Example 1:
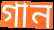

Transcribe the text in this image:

গান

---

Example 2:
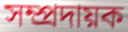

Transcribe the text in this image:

সম্প্ৰদায়ক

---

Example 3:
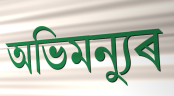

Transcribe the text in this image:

অভিমন্যুৰ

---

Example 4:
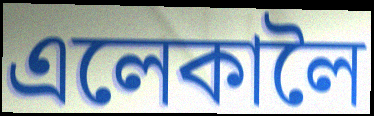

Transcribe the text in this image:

এলেকালৈ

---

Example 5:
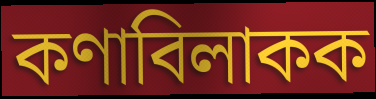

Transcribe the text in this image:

কণাবিলাকক